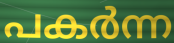
പകർന്ന